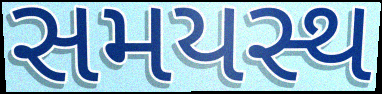
સમયસ્થ